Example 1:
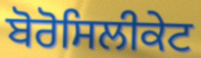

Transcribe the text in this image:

ਬੋਰੋਸਿਲੀਕੇਟ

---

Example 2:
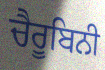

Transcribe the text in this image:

ਚੈਰੂਬਿਨੀ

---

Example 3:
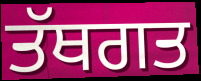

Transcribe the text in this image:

ਤੱਥਗਤ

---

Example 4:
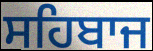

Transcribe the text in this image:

ਸਹਿਬਾਜ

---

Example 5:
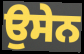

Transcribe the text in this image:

ਉਸੇਨ